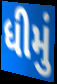
ધીમું